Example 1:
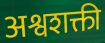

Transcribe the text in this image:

अश्वशक्ती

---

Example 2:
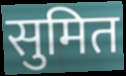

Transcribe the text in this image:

सुमित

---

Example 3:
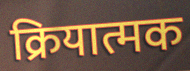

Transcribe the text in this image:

क्रियात्मक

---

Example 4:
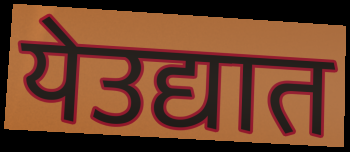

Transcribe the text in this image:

येउद्यात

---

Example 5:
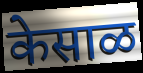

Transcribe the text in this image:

केसाळ